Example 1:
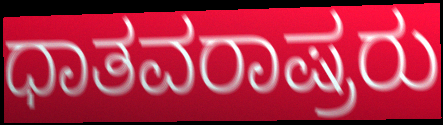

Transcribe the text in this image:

ಧಾತವರಾಷ್ರರು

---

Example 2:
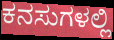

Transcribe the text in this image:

ಕನಸುಗಳಲ್ಲಿ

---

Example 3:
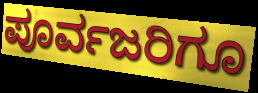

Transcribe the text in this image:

ಪೂರ್ವಜರಿಗೂ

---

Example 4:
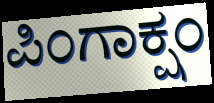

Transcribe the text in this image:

ಪಿಂಗಾಕ್ಷಂ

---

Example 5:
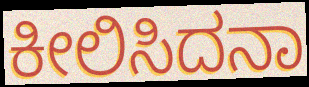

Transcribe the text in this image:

ಕೀಲಿಸಿದನಾ